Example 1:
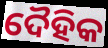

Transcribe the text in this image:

ଦୈହିକ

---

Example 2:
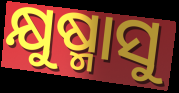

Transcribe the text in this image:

କ୍ଷୁଷ୍ମାସୁ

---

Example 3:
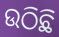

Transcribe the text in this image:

ଉଠିଛି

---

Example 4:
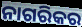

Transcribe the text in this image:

ନାଗରିକର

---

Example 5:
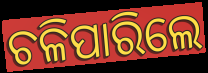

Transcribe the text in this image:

ଚଳିପାରିଲେ